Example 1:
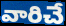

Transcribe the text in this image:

వారిచే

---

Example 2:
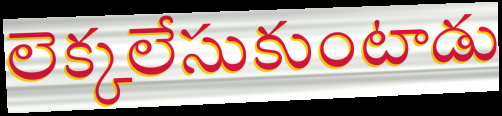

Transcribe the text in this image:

లెక్కలేసుకుంటాడు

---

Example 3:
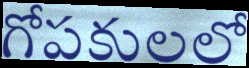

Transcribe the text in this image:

గోపకులలో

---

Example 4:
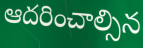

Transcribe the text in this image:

ఆదరించాల్సిన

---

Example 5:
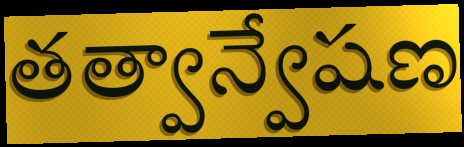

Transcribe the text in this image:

తత్వాన్వేషణ